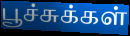
பூச்சுக்கள்